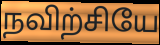
நவிற்சியே